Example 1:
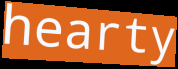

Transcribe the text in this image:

hearty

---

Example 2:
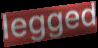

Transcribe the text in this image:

legged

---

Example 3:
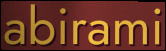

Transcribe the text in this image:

abirami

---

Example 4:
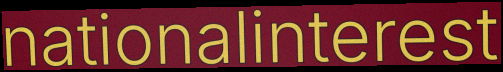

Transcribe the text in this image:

nationalinterest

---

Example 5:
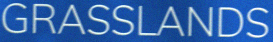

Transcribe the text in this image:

GRASSLANDS